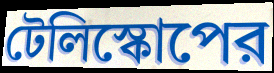
টেলিস্কোপের